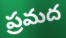
ప్రమద